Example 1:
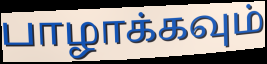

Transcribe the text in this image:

பாழாக்கவும்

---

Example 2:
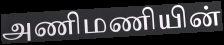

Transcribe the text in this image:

அணிமணியின்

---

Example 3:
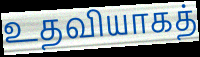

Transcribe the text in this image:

உதவியாகத்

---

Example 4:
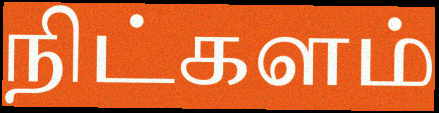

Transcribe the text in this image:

நிட்களம்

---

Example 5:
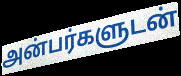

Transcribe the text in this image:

அன்பர்களுடன்